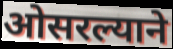
ओसरल्याने